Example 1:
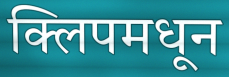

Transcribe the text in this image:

क्लिपमधून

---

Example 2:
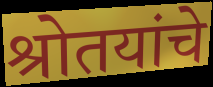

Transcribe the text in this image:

श्रोतयांचे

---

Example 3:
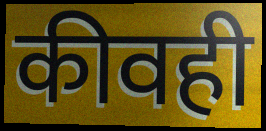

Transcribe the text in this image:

कीवही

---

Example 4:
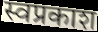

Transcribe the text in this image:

स्वप्रकाश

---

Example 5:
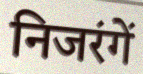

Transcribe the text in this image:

निजरंगें